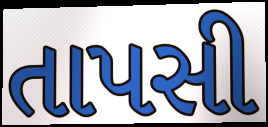
તાપસી